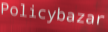
Policybazar